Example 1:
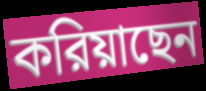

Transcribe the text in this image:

করিয়াছেন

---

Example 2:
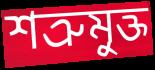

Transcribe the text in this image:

শত্রুমুক্ত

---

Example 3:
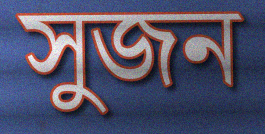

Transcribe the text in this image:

সুজন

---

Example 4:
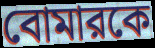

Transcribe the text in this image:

বোমারকে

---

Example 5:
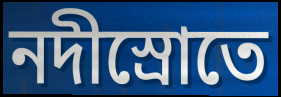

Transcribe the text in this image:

নদীস্রোতে